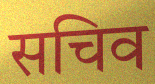
सचिव